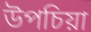
উপচিয়া